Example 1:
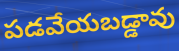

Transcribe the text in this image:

పడవేయబడ్డావు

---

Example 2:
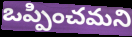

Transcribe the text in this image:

ఒప్పించమని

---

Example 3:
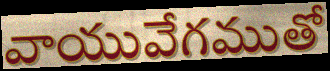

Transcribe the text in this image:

వాయువేగముతో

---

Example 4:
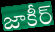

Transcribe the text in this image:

జాకీర్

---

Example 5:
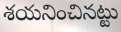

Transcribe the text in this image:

శయనించినట్టు